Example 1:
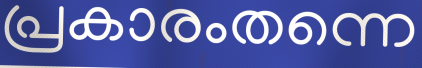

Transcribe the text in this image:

പ്രകാരംതന്നെ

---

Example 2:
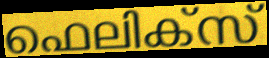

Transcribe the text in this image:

ഫെലിക്‌സ്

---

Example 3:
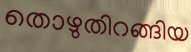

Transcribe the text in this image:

തൊഴുതിറങ്ങിയ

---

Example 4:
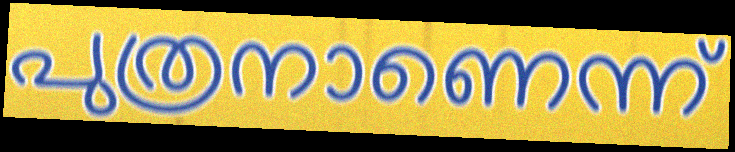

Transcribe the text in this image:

പുത്രനാണെന്ന്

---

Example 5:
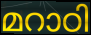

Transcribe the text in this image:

മറാഠി